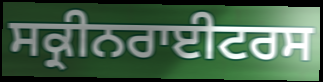
ਸਕ੍ਰੀਨਰਾਈਟਰਸ